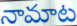
నామాట